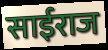
साईराज